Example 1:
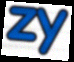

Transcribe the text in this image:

zy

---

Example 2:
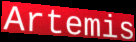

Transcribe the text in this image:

Artemis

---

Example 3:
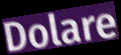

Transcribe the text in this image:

Dolare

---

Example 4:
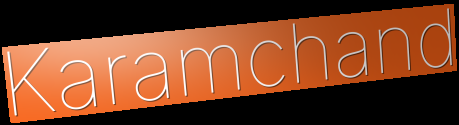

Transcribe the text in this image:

Karamchand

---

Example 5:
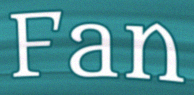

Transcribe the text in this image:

Fan